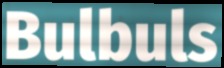
Bulbuls